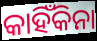
କାହିଁକିନା